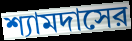
শ্যামদাসের